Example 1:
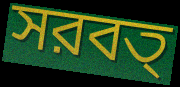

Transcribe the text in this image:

সরবত্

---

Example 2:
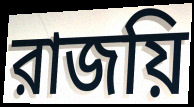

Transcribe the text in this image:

রাজয়ি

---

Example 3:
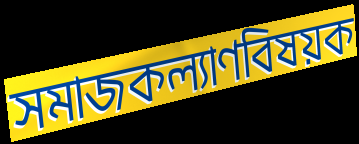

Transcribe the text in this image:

সমাজকল্যাণবিষয়ক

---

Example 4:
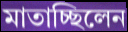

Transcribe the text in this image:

মাতাচ্ছিলেন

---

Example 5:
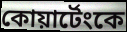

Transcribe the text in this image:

কোয়ার্টেংকে